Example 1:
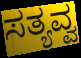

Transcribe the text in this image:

ಸತ್ಯವ್ವ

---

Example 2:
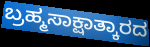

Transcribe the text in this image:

ಬ್ರಹ್ಮಸಾಕ್ಷಾತ್ಕಾರದ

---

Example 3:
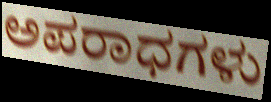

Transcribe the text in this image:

ಅಪರಾಧಗಳು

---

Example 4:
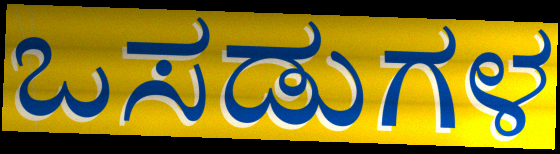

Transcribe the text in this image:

ಒಸಡುಗಳ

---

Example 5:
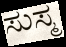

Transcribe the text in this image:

ಸುಸ್ಮ